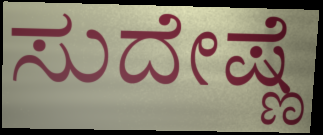
ಸುದೇಷ್ಣೆ